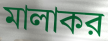
মালাকর